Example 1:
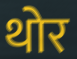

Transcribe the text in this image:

थोर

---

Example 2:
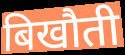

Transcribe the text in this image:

बिखौती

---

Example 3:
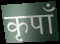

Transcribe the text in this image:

कृपाँ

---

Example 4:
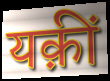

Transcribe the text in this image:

यक़ीं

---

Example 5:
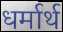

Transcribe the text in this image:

धर्मार्थ